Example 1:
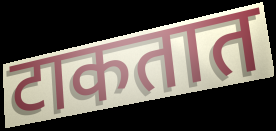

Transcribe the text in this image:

टाकतात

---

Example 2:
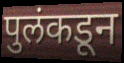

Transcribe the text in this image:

पुलंकडून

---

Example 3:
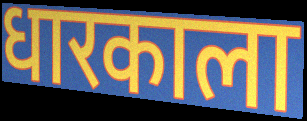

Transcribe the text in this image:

धारकाला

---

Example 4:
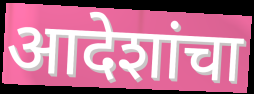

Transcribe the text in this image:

आदेशांचा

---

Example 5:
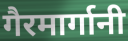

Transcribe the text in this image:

गैरमार्गानी